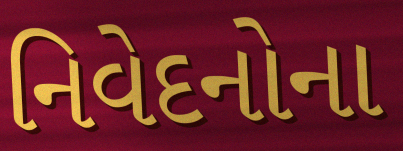
નિવેદનોના